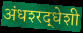
अंधश्रद्धेशी